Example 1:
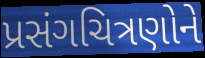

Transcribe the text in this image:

પ્રસંગચિત્રણોને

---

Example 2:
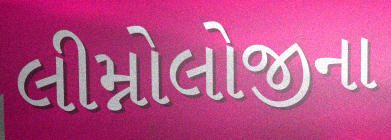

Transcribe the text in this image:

લીમ્નોલોજીના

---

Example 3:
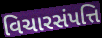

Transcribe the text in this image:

વિચારસંપત્તિ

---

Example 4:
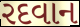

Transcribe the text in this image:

રદવાન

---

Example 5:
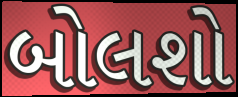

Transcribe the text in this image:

બોલશો